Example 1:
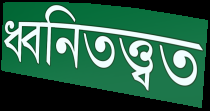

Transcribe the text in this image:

ধ্বনিতত্ত্বত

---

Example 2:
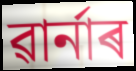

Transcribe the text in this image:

ৱাৰ্নাৰ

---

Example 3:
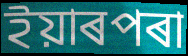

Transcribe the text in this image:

ইয়াৰপৰা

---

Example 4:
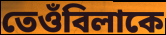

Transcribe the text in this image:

তেওঁবিলাকে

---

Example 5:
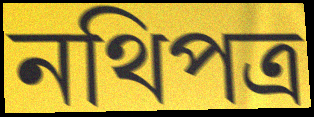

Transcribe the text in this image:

নথিপত্ৰ